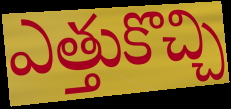
ఎత్తుకొచ్చి